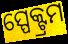
ସ୍ପେକ୍ଟ୍ରମ